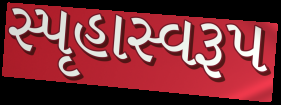
સ્પૃહાસ્વરૂપ